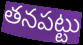
తనపట్టు